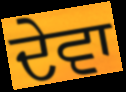
ਦੇਵਾ